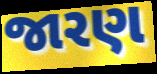
જારણ